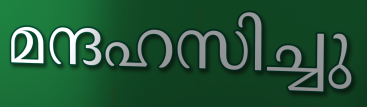
മന്ദഹസിച്ചു